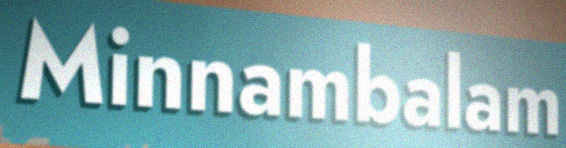
Minnambalam